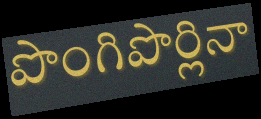
పొంగిపొర్లినా